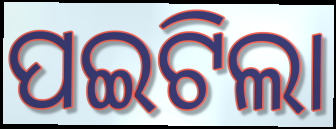
ପଇଟିଲା